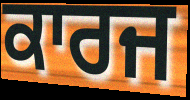
ਕਾਰਜ